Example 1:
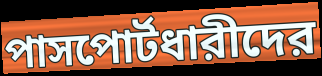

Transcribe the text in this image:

পাসপোর্টধারীদের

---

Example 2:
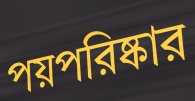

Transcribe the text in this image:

পয়পরিষ্কার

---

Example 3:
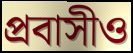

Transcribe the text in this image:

প্রবাসীও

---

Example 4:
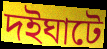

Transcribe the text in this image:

দইঘাটে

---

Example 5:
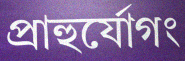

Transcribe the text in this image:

প্রাহুর্যোগং